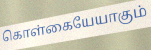
கொள்கையேயாகும்